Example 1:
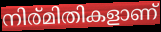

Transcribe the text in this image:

നിര്മിതികളാണ്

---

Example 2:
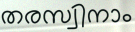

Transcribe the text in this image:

തരസ്വിനാം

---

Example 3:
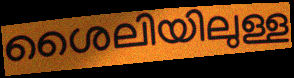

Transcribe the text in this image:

ശൈലിയിലുള്ള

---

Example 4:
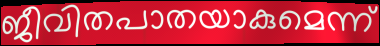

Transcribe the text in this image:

ജീവിതപാതയാകുമെന്ന്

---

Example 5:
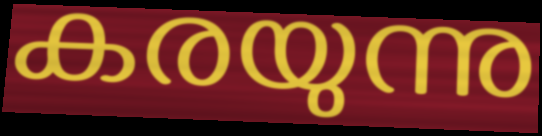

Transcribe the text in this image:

കരയുന്നു